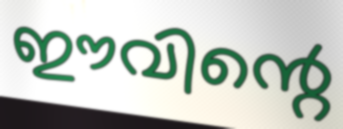
ഈവിന്റെ